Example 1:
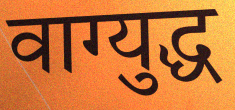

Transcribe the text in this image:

वाग्युद्ध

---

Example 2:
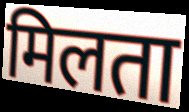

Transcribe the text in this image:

मिलता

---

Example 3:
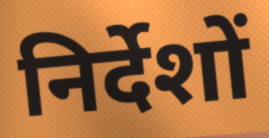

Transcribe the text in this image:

निर्देशों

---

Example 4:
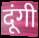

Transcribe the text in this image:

दूंगी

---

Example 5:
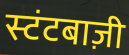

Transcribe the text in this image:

स्टंटबाज़ी